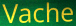
Vache